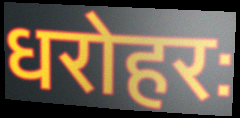
धरोहरः